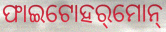
ଫାଇଟୋହର୍‌ମୋନ୍